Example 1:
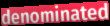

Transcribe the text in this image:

denominated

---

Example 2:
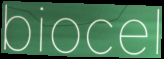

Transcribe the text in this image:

biocel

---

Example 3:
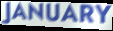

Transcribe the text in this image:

JANUARY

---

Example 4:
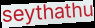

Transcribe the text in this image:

seythathu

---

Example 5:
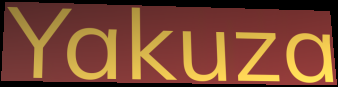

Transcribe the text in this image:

Yakuza